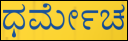
ಧರ್ಮೇಚ